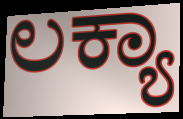
ಲಕ್ಯಾ